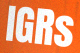
IGRs